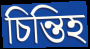
চিন্তিহ